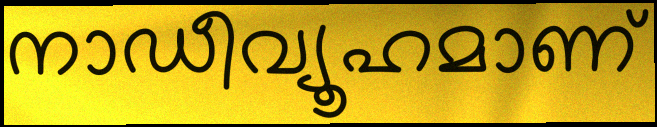
നാഡീവ്യൂഹമാണ്